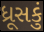
ધ્રૂસકું